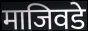
माजिवडे